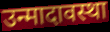
उन्मादावस्था